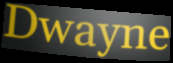
Dwayne